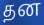
தன